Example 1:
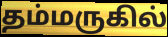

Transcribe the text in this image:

தம்மருகில்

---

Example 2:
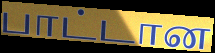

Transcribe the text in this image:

பாட்டான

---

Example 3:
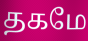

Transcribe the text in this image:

தகமே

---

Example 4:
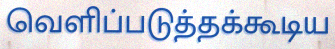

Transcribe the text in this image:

வெளிப்படுத்தக்கூடிய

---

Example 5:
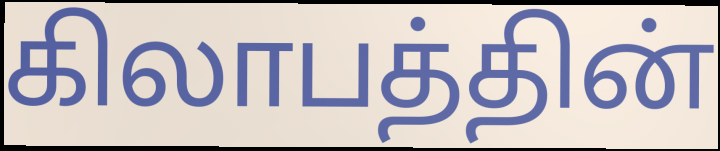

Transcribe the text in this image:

கிலாபத்தின்